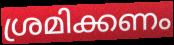
ശ്രമിക്കണം